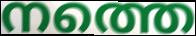
നത്തെ